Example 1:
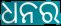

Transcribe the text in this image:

ଧନର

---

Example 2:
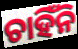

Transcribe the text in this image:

ଚାହିଁନି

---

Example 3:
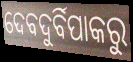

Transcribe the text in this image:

ଦେବଦୁର୍ବିପାକରୁ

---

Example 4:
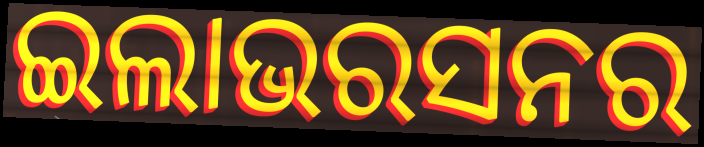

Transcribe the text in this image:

ଇଲାଭରସନର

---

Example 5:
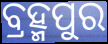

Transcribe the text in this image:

ବ୍ରହ୍ମପୁର